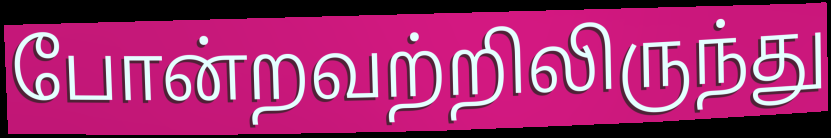
போன்றவற்றிலிருந்து